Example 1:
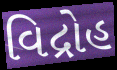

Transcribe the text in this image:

વિદ્રોહ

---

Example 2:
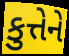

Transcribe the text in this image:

કુત્તેને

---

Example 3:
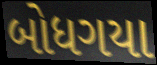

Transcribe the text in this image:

બોધગયા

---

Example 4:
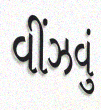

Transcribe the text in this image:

વીંઝવું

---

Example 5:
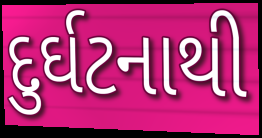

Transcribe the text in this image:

દુર્ઘટનાથી